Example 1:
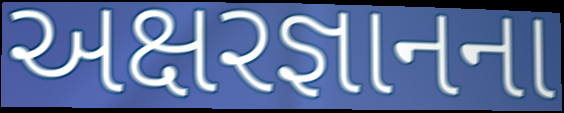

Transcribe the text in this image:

અક્ષરજ્ઞાનના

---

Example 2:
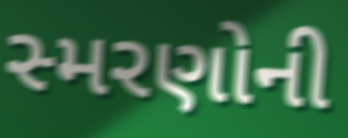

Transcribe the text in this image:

સ્મરણોની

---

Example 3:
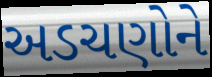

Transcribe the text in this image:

અડચણોને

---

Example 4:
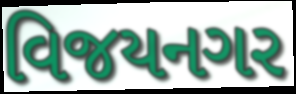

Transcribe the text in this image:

વિજયનગર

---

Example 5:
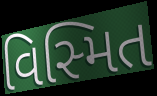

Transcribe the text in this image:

વિસ્મિત